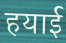
हयाई